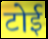
टोई